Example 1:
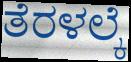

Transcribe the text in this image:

ತೆರಳಲ್ಕೆ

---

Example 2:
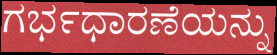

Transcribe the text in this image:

ಗರ್ಭಧಾರಣೆಯನ್ನು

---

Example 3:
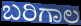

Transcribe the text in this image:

ಬರಿಗಾಲ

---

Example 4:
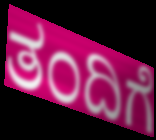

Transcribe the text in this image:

ತಂದಿಗೆ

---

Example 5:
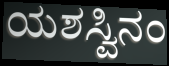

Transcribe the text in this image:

ಯಶಸ್ವಿನಂ